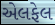
એલફેલ